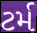
ટર્મ